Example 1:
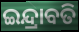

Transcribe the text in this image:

ଇନ୍ଦ୍ରାବତି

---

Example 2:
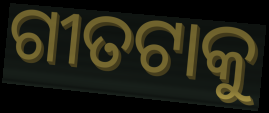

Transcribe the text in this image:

ଗୀତଟାକୁ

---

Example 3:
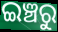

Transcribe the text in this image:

ଇଞ୍ଚରୁ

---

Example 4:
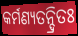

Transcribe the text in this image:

କର୍ମଣ୍ୟତନ୍ଦ୍ରିତଃ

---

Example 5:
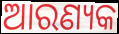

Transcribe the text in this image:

ଆରଣ୍ୟକ